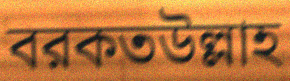
বরকতউল্লাহ